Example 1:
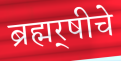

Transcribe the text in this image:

ब्रह्मर्षीचे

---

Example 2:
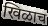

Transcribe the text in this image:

खिळाच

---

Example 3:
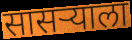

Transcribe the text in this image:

सासर्‍याला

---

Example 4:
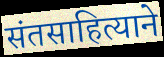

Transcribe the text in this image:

संतसाहित्याने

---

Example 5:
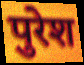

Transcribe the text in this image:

पुरेश